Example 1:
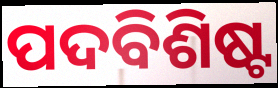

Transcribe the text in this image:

ପଦବିଶିଷ୍ଟ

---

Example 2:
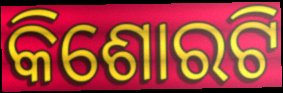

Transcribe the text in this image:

କିଶୋରଟି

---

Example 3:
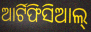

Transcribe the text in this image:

ଆର୍ଟିଫିସିଆଲ୍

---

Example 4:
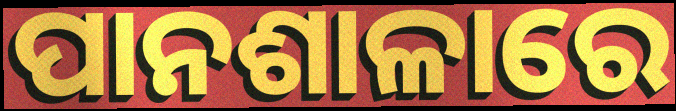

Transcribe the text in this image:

ପାନଶାଳାରେ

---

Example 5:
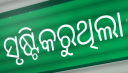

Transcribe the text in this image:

ସୃଷ୍ଟିକରୁଥିଲା